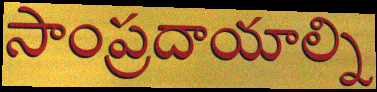
సాంప్రదాయాల్ని